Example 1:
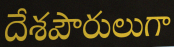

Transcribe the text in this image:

దేశపౌరులుగా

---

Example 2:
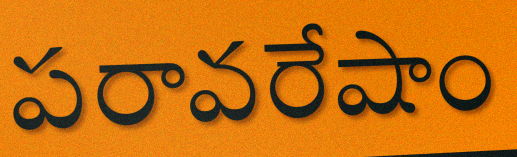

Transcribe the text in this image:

పరావరేషాం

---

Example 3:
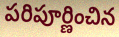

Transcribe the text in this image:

పరిపూర్ణించిన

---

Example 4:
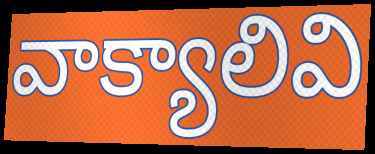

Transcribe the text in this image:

వాక్యాలివి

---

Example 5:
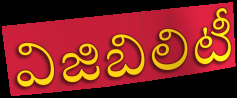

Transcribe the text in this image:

విజిబిలిటీ